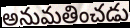
అనుమతించడు